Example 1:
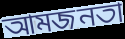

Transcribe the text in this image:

আমজনতা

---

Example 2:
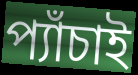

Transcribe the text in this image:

প্যাঁচাই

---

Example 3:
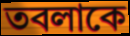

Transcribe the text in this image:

তবলাকে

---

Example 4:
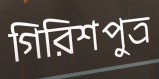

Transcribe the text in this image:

গিরিশপুত্র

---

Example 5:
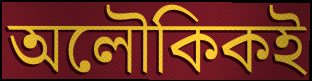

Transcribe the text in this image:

অলৌকিকই